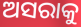
ଅସରାକୁ